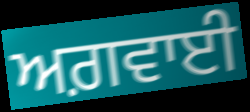
ਅਗ਼ਵਾਈ